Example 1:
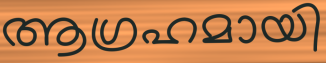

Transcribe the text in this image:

ആഗ്രഹമായി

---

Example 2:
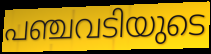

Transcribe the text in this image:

പഞ്ചവടിയുടെ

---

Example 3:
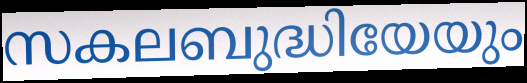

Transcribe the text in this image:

സകലബുദ്ധിയേയും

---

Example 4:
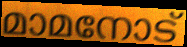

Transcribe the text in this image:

മാമനോട്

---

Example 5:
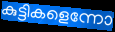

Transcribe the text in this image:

കുട്ടികളെന്നോ